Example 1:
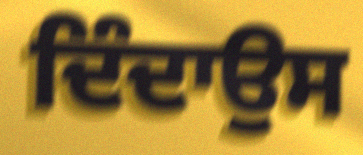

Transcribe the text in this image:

ਦਿੰਦਾਉਸ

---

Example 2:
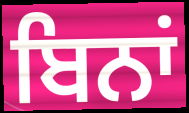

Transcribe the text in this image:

ਬਿਨਾਂ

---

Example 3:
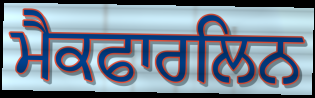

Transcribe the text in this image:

ਮੈਕਫਾਰਲਿਨ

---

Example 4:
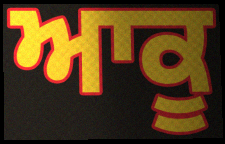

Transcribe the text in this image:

ਆਕੂ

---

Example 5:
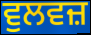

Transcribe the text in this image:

ਵੁਲਵਜ਼